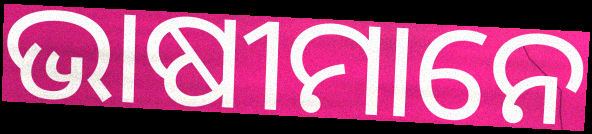
ଭାଷୀମାନେ